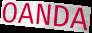
OANDA